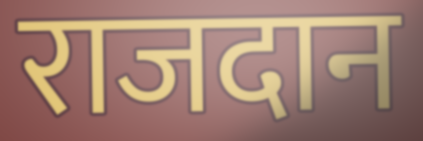
राजदान